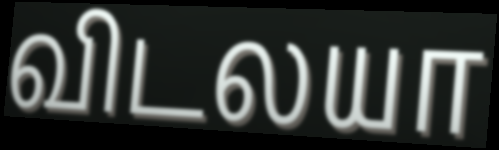
விடலயா